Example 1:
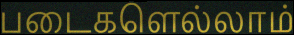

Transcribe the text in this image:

படைகளெல்லாம்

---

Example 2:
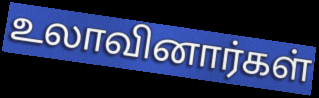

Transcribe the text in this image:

உலாவினார்கள்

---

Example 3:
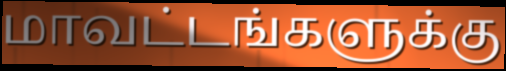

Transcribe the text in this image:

மாவட்டங்களுக்கு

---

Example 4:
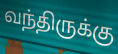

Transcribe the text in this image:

வந்திருக்கு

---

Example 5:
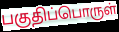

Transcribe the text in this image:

பகுதிப்பொருள்